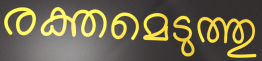
രക്തമെടുത്തു